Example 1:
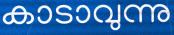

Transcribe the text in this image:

കാടാവുന്നു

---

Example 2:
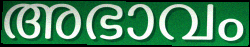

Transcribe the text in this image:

അഭാവം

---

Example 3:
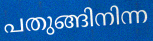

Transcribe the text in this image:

പതുങ്ങിനിന്ന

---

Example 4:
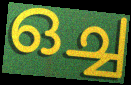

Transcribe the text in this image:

ഒച്ച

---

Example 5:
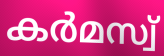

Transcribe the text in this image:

കർമസ്വ്